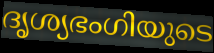
ദൃശ്യഭംഗിയുടെ